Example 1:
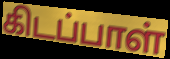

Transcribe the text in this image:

கிடப்பாள்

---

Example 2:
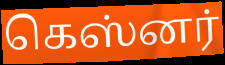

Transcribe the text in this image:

கெஸ்னர்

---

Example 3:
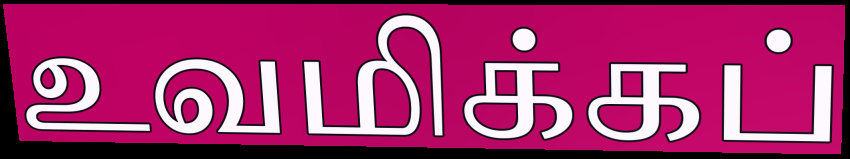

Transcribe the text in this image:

உவமிக்கப்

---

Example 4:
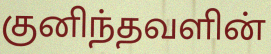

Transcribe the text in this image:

குனிந்தவளின்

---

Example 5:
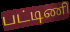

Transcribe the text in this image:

பட்டிணி